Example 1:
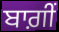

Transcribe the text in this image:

ਬਾਗ਼ੀਂ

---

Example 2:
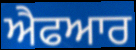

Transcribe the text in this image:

ਐਫਆਰ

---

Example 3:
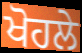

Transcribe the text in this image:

ਖੋਹਲੇ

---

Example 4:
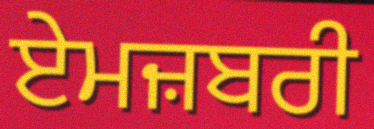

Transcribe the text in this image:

ਏਮਜ਼ਬਰੀ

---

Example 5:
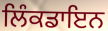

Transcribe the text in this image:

ਲਿੰਕਡਾਇਨ